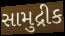
સામુદ્રીક